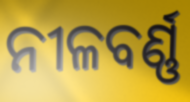
ନୀଳବର୍ଣ୍ଣ